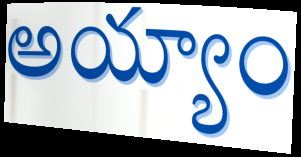
అయ్యాం